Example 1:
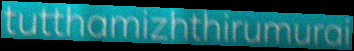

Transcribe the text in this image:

tutthamizhthirumurai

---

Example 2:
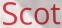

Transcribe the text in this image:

Scot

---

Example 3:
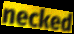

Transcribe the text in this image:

necked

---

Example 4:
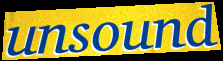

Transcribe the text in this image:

unsound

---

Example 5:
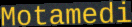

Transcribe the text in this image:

Motamedi